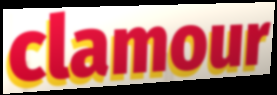
clamour